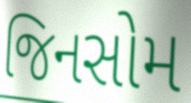
જિનસોમ